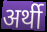
अर्थी